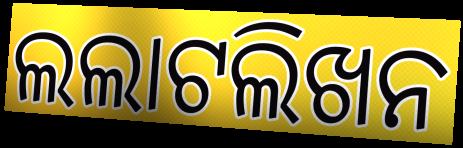
ଲଲାଟଲିଖନ